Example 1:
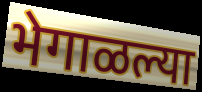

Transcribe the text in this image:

भेगाळल्या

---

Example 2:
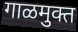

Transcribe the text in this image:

गाळमुक्त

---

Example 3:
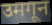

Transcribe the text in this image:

उमगून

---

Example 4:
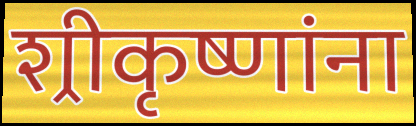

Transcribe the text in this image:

श्रीकृष्णांना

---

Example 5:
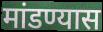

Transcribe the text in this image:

मांडण्यास